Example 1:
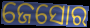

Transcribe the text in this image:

ଜେସୋର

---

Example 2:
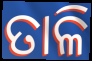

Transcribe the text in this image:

ତାଳି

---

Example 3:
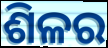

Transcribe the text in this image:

ଶିଳର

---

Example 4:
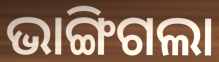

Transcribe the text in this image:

ଭାଙ୍ଗିଗଲା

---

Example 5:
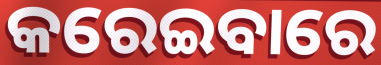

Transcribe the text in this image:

କରେଇବାରେ